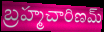
బ్రహ్మచారిణమ్